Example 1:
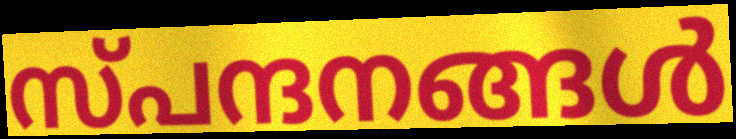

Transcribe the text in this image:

സ്പന്ദനങ്ങൾ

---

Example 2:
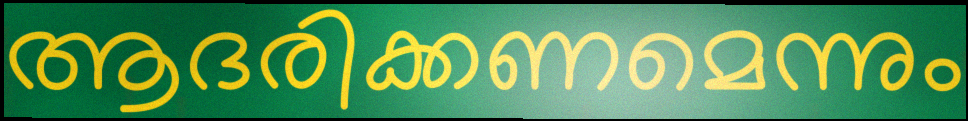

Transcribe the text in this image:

ആദരിക്കണമെന്നും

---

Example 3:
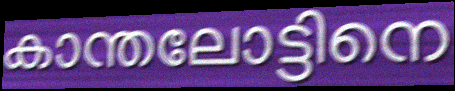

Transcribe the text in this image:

കാന്തലോട്ടിനെ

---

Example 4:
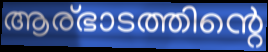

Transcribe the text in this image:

ആര്ഭാടത്തിന്റെ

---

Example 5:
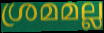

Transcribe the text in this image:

ശ്രമമല്ല